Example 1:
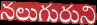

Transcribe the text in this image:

నలుగురుని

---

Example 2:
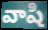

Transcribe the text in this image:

వాషి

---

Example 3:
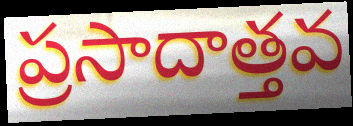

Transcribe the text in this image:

ప్రసాదాత్తవ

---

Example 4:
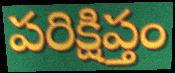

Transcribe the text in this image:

పరిక్షిప్తం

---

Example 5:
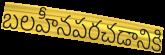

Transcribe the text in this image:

బలహీనపరచడానికి